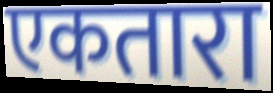
एकतारा